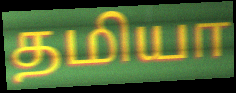
தமியா